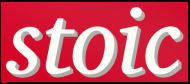
stoic